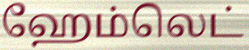
ஹேம்லெட்